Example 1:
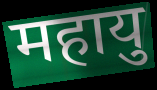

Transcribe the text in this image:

महायु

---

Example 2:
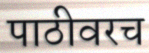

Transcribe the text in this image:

पाठीवरच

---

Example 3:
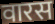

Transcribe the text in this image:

वारस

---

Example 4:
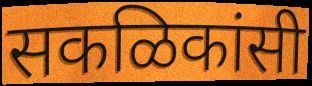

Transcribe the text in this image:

सकळिकांसी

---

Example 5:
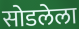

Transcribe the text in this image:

सोडलेला